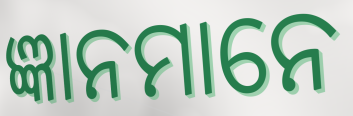
ଜ୍ଞାନମାନେ